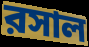
রসাল